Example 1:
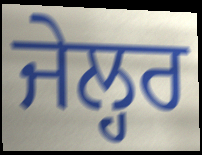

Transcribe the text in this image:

ਜੇਲ੍ਹਰ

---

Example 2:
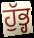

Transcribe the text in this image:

ਹੁੱਭ੍ਹ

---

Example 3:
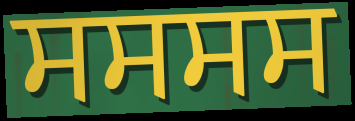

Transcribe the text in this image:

ਸਸਸਸ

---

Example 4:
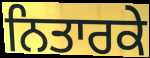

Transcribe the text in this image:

ਨਿਤਾਰਕੇ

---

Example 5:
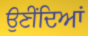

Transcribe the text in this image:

ਉਣੀਂਦਿਆਂ